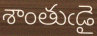
శాంతుఁడై